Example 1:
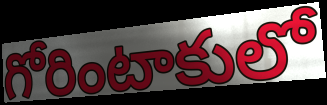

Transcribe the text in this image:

గోరింటాకులో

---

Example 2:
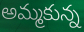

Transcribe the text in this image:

అమ్మకున్న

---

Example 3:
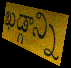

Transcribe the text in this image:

ఖడ్గాన్ని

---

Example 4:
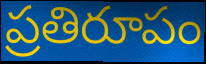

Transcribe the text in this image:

ప్రతిరూపం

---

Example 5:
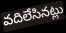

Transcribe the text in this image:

వదిలేసినట్లు